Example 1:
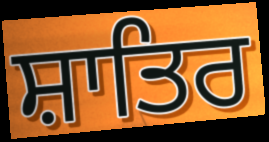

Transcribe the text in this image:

ਸ਼ਾਤਿਰ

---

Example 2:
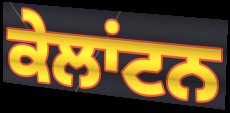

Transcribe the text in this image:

ਕੇਲਾਂਟਨ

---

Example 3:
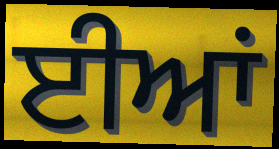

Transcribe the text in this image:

ਈਆਂ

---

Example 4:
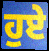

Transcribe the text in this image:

ਹੁਏ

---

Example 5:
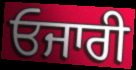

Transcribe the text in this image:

ਓਜਾਰੀ